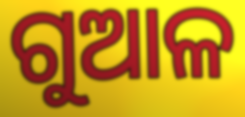
ଗୁଆଳ